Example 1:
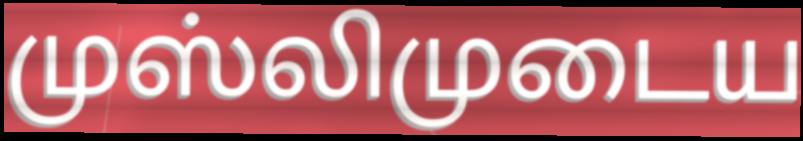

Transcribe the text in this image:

முஸ்லிமுடைய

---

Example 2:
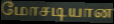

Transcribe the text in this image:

மோசடியான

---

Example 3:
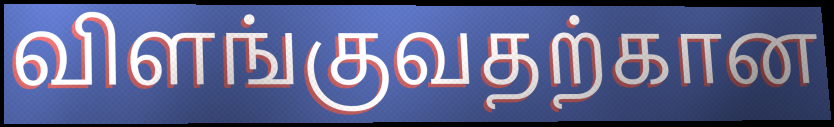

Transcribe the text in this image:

விளங்குவதற்கான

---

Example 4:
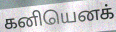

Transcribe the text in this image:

கனியெனக்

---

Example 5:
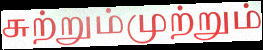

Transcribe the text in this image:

சுற்றும்முற்றும்